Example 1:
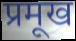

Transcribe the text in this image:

प्रमूख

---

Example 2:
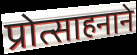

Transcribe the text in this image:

प्रोत्साहनाने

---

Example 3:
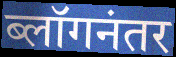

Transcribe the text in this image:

ब्लॉगनंतर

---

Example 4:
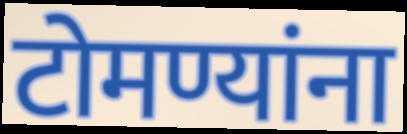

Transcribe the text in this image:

टोमण्यांना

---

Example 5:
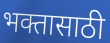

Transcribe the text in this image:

भक्तासाठी